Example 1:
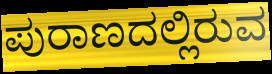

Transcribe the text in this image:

ಪುರಾಣದಲ್ಲಿರುವ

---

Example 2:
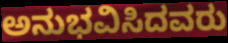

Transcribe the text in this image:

ಅನುಭವಿಸಿದವರು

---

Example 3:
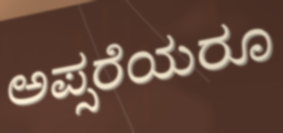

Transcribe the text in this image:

ಅಪ್ಸರೆಯರೂ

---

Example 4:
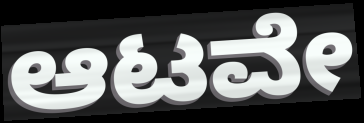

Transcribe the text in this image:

ಆಟವೇ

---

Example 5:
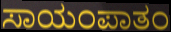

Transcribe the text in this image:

ಸಾಯಂಪಾತಂ